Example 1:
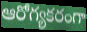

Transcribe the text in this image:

ఆరోగ్యకరంగా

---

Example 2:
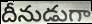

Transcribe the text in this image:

దీనుడుగా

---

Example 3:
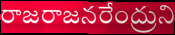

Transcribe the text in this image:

రాజరాజనరేంద్రుని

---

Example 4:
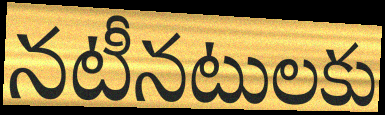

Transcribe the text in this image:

నటీనటులకు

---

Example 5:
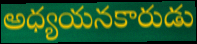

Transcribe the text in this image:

అధ్యయనకారుడు